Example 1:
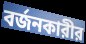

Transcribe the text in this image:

বর্জনকারীর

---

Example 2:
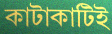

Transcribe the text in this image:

কাটাকাটিই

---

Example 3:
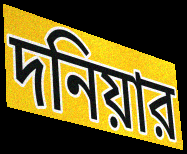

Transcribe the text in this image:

দনিয়ার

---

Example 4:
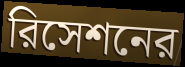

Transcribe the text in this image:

রিসেশনের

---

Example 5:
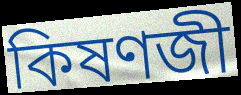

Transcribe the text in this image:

কিষণজী